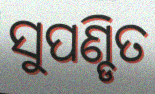
ସୁପଣ୍ଡିତ